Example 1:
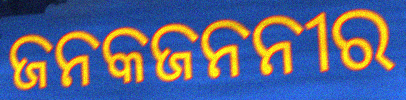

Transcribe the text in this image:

ଜନକଜନନୀର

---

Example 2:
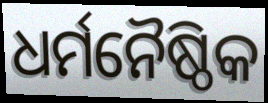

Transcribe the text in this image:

ଧର୍ମନୈଷ୍ଠିକ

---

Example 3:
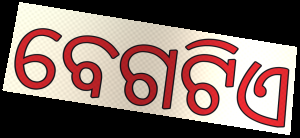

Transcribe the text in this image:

ବେଗଟିଏ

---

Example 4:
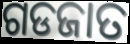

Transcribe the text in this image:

ଗଡଜାତ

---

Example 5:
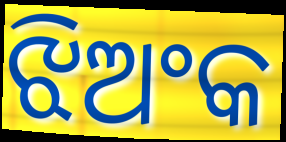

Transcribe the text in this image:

ଝିଅଂକ